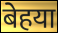
बेहया